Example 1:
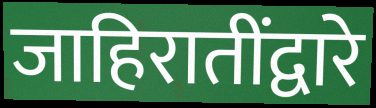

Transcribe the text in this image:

जाहिरातींद्वारे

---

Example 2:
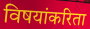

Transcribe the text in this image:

विषयांकरिता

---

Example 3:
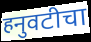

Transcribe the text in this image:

हनुवटीचा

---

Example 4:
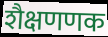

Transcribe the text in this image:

शैक्षणणक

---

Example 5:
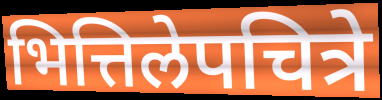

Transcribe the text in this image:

भित्तिलेपचित्रे